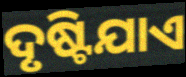
ଦୃଷ୍ଟିଯାଏ